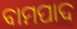
ବାମପାଦ